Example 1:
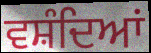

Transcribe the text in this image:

ਵਸ਼ੰਦਿਆਂ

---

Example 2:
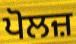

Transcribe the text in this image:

ਪੋਲਜ਼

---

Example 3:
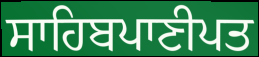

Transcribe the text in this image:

ਸਾਹਿਬਪਾਣੀਪਤ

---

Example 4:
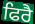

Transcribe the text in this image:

ਫਿਰੈ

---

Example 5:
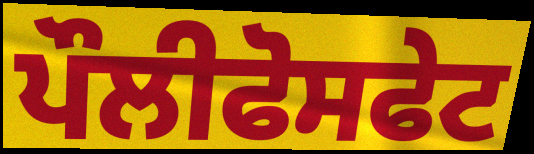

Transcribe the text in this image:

ਪੌਲੀਫੋਸਫੇਟ